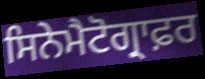
ਸਿਨੇਮੈਟੋਗ੍ਰਾਫ਼ਰ